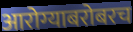
आरोग्याबरोबरच